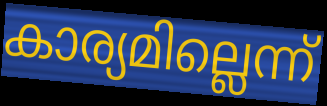
കാര്യമില്ലെന്ന്